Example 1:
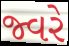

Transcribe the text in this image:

જ્વરે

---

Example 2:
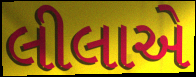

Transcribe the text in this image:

લીલાએ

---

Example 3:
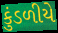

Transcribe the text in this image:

કુંડળીયે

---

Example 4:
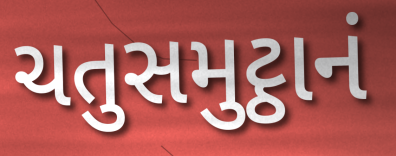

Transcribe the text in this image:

ચતુસમુટ્ઠાનં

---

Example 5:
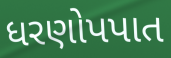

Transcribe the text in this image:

ધરણોપપાત